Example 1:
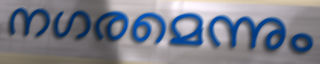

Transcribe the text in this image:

നഗരമെന്നും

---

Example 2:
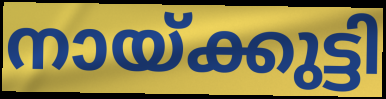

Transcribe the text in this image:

നായ്ക്കുട്ടി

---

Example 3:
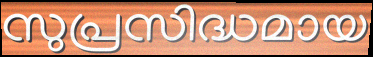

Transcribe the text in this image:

സുപ്രസിദ്ധമായ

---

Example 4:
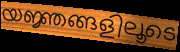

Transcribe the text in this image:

യജ്ഞങ്ങളിലൂടെ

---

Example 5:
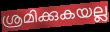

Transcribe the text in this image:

ശ്രമിക്കുകയല്ല